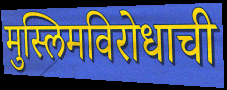
मुस्लिमविरोधाची